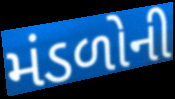
મંડળોની